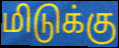
மிடுக்கு